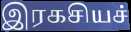
இரகசியச்